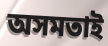
অসমতাই